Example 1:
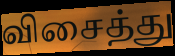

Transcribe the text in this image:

விசைத்து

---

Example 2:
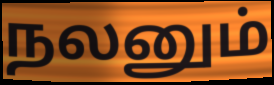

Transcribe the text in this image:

நலனும்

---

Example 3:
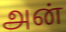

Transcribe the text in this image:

அன்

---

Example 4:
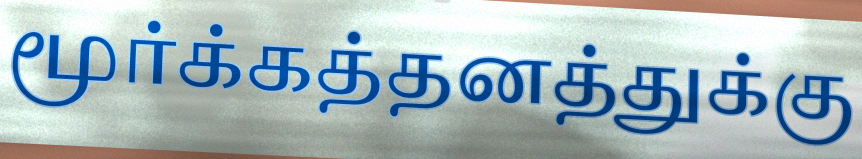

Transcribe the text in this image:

மூர்க்கத்தனத்துக்கு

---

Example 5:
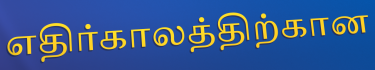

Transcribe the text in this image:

எதிர்காலத்திற்கான